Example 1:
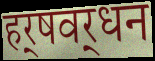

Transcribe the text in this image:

हर्षवर्धन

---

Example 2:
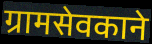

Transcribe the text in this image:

ग्रामसेवकाने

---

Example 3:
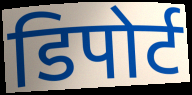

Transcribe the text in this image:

डिपोर्ट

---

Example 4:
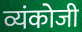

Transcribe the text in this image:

व्यंकोजी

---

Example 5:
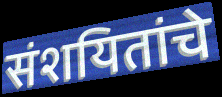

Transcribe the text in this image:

संशयितांचे